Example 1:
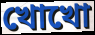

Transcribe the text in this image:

খোখো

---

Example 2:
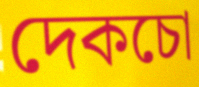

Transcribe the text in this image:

দেকচো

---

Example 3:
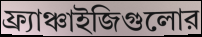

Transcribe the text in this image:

ফ্র্যাঞ্চাইজিগুলোর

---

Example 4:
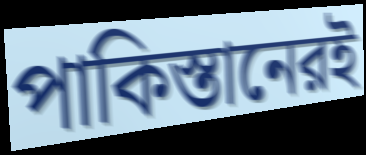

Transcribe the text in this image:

পাকিস্তানেরই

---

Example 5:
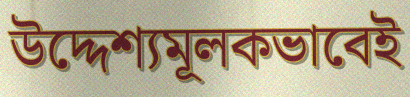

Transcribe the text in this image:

উদ্দেশ্যমূলকভাবেই